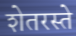
शेतरस्ते